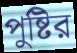
পুষ্টির